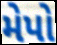
મેપો